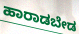
ಹಾರಾಡಬೇಡ